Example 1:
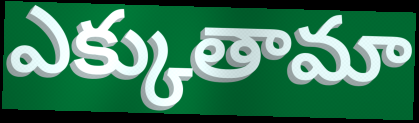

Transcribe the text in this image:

ఎక్కుతామా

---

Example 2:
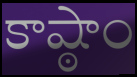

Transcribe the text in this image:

కాష్ఠాం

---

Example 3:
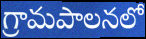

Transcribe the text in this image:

గ్రామపాలనలో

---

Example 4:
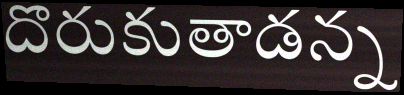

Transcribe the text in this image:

దొరుకుతాడన్న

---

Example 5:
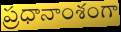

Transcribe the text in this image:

ప్రధానాంశంగా